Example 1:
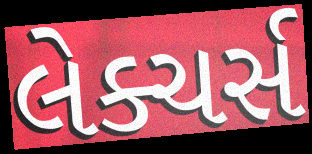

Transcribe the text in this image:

લેક્ચર્સ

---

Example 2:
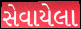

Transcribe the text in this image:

સેવાયેલા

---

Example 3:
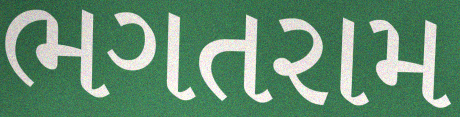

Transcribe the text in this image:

ભગતરામ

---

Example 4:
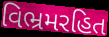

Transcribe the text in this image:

વિભ્રમરહિત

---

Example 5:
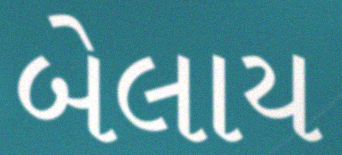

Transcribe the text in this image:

બેલાય